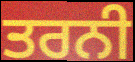
ਤਰਨੀ